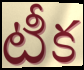
టీక